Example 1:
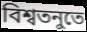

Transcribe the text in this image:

বিশ্বতনুতে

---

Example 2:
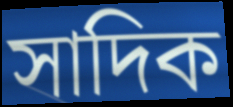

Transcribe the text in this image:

সাদিক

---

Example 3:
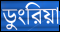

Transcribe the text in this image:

ডুংরিয়া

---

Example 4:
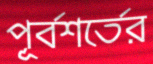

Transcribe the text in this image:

পূর্বশর্তের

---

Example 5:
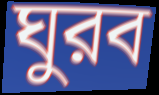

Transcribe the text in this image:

ঘুরব